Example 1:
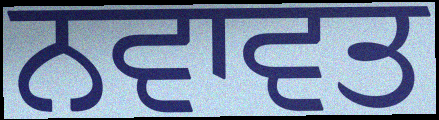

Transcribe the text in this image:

ਨਵਾਵਤ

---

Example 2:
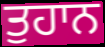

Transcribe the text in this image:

ਤੁਹਾਨ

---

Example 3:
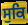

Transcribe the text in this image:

ਸੁਕਿ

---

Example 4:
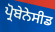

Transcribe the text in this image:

ਪ੍ਰੋਬੇਨੇਸੀਡ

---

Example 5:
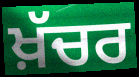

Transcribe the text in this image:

ਖ਼ੱਚਰ